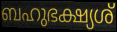
ബഹുഭക്ഷ്യശ്